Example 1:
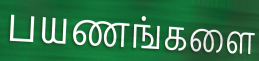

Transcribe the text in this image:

பயணங்களை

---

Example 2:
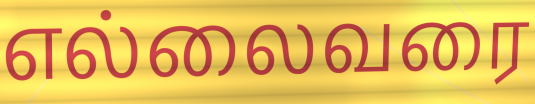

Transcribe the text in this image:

எல்லைவரை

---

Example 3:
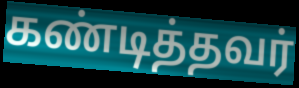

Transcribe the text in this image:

கண்டித்தவர்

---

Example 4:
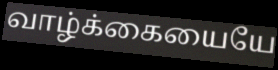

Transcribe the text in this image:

வாழ்க்கையையே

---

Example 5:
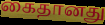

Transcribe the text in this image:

கைதானது